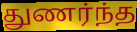
துணர்ந்த